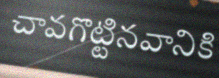
చావగొట్టినవానికి